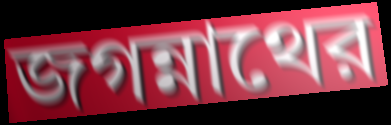
জগন্নাথের